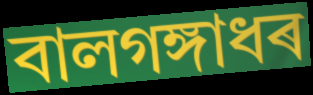
বালগঙ্গাধৰ